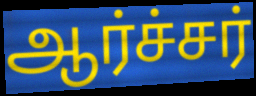
ஆர்ச்சர்